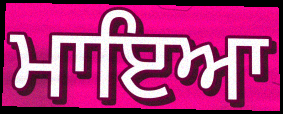
ਮਾਇਆ